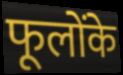
फूलोंके